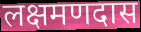
लक्षमणदास